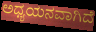
ಅಧ್ಯಯನವಾಗಿದೆ